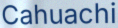
Cahuachi